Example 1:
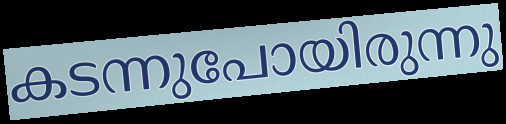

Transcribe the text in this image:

കടന്നുപോയിരുന്നു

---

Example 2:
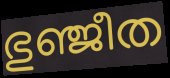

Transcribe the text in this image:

ഭുഞ്ജീത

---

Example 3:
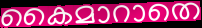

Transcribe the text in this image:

കൈമാറാതെ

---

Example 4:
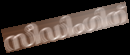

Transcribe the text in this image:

സീഡിംഗിന്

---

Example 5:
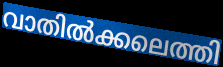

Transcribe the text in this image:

വാതിൽക്കലെത്തി